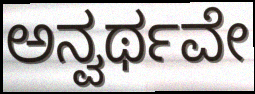
ಅನ್ವರ್ಥವೇ